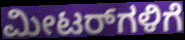
ಮೀಟರ್‌ಗಳಿಗೆ